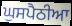
ਘੁਸਪੈਠੀਆ